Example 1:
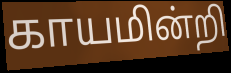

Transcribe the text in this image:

காயமின்றி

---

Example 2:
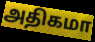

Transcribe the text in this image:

அதிகமா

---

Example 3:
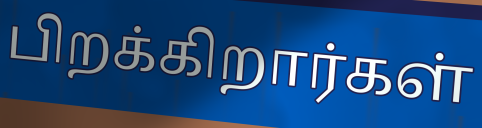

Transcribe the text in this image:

பிறக்கிறார்கள்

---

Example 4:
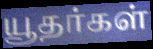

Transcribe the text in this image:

யூதர்கள்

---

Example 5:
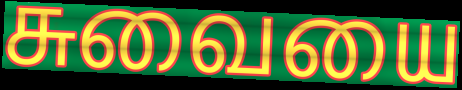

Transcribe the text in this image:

சுவையை